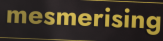
mesmerising